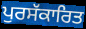
ਪੁਰਸੱਕਾਰਿਤ